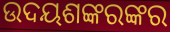
ଉଦୟଶଙ୍କରଙ୍କର